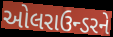
ઓલરાઉન્ડરને